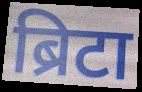
ब्रिटा